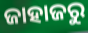
ଜାହାଜରୁ